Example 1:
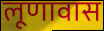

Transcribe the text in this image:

लूणावास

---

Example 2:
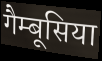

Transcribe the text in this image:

गैम्बूसिया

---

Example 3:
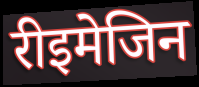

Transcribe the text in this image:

रीइमेजिन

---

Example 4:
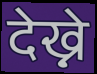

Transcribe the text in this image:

देख्ने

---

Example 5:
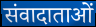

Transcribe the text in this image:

संवादाताओं